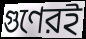
গুণেরই